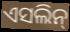
ଏସଲିନ୍